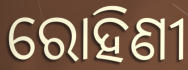
ରୋହିଣୀ